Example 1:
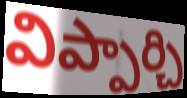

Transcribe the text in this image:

విప్పార్చి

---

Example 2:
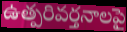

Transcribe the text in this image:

ఉత్పరివర్తనాలపై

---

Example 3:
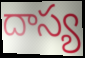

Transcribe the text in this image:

దాస్య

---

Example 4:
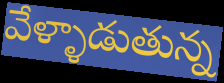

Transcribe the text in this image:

వేళ్ళాడుతున్న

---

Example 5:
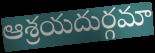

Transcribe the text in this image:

ఆశ్రయదుర్గమా